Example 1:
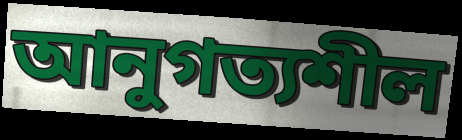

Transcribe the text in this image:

আনুগত্যশীল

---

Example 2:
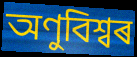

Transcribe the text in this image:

অণুবিশ্বৰ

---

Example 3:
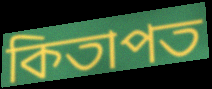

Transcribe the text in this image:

কিতাপত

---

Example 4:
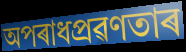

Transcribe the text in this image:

অপৰাধপ্ৰৱণতাৰ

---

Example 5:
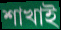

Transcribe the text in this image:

শাখাই